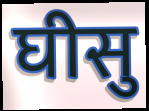
घीसु